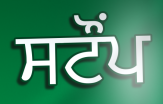
ਸਟੌਂਪ